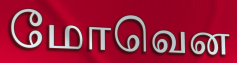
மோவென